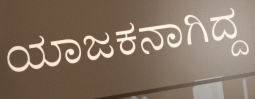
ಯಾಜಕನಾಗಿದ್ದ